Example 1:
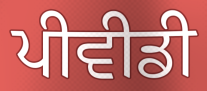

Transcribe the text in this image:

ਪੀਵੀਡੀ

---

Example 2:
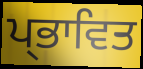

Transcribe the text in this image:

ਪ੍ਭਾਵਿਤ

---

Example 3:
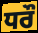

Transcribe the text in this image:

ਧਰੌ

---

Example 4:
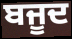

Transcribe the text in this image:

ਬਜੂਦ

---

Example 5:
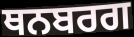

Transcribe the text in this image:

ਥਨਬਰਗ